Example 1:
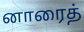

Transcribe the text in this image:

னாரைத்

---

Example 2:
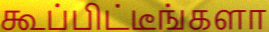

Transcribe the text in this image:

கூப்பிட்டீங்களா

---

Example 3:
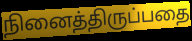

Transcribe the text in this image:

நினைத்திருப்பதை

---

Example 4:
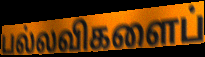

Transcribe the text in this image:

பல்லவிகளைப்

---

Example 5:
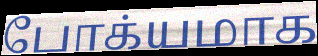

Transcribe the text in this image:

போக்யமாக